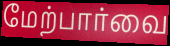
மேற்பார்வை